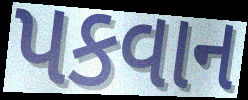
પકવાન